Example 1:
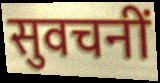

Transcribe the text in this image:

सुवचनीं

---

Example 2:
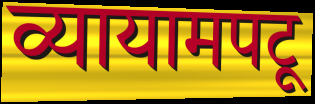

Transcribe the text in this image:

व्यायामपटू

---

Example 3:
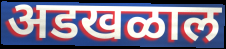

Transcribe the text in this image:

अडखळाल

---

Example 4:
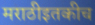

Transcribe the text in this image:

मराठीइतकीच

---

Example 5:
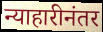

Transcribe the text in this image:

न्याहारीनंतर